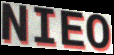
NIEO